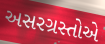
અસરગ્રસ્તોએ